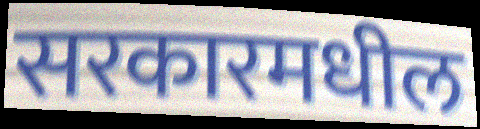
सरकारमधील